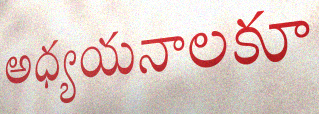
అధ్యయనాలకూ